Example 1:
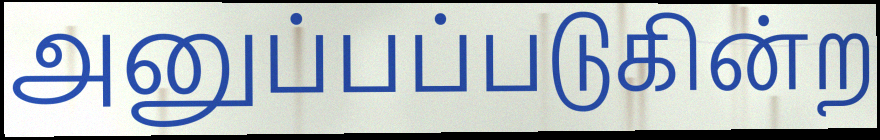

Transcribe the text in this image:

அனுப்பப்படுகின்ற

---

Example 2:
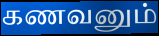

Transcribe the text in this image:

கணவனும்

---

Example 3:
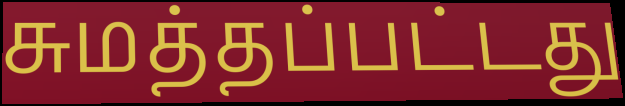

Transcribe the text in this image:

சுமத்தப்பட்டது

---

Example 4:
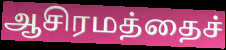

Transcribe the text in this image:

ஆசிரமத்தைச்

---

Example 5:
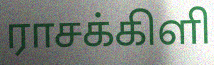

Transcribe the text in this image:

ராசக்கிளி